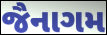
જૈનાગમ